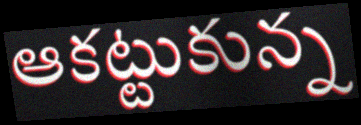
ఆకట్టుకున్న